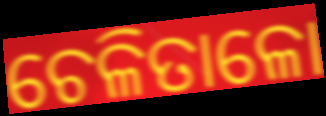
ଚେଳିତାଳୋ